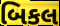
બિકલ